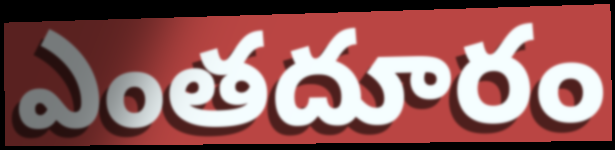
ఎంతదూరం